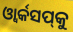
ଓ୍ୱାର୍କସପ୍‌କୁ